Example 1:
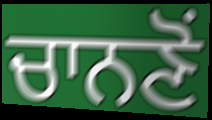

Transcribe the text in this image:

ਚਾਨਣੋਂ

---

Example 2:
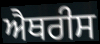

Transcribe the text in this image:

ਐਥਰੀਸ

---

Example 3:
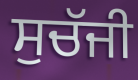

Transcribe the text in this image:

ਸੁਚੱਜੀ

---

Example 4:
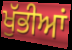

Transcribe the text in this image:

ਖੁੱਭੀਆਂ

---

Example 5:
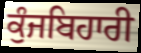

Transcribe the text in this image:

ਕੁੰਜਬਿਹਾਰੀ